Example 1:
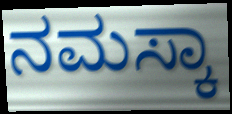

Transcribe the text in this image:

ನಮಸ್ಕಾ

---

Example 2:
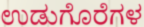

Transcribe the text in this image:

ಉಡುಗೊರೆಗಳ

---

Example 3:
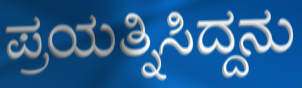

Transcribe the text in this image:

ಪ್ರಯತ್ನಿಸಿದ್ದನು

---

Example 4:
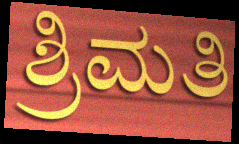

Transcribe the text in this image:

ಶ್ರಿಮತಿ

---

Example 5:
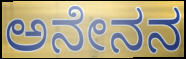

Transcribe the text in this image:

ಅನೇನನ